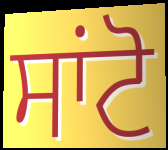
ਸਾਂਟੋ